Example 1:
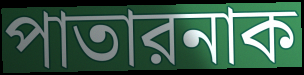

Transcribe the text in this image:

পাতারনাক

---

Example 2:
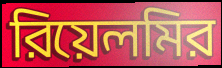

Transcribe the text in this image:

রিয়েলমির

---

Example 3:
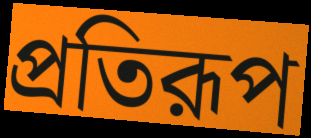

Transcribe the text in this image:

প্রতিরূপ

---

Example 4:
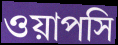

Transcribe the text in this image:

ওয়াপসি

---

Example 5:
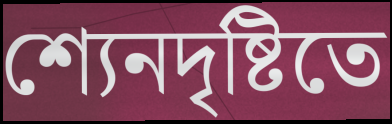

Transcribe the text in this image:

শ্যেনদৃষ্টিতে